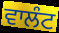
ਵਾਲੰਟ